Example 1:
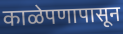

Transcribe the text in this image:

काळेपणापासून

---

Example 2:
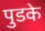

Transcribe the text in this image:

पुडके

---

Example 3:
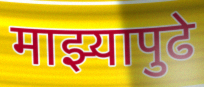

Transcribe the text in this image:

माझ्यापुढे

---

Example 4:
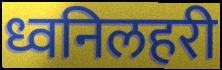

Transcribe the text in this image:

ध्वनिलहरी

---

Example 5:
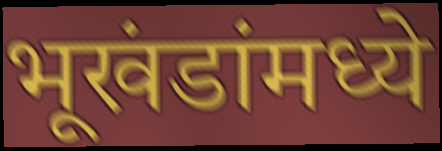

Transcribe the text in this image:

भूखंडांमध्ये